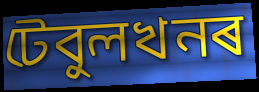
টেবুলখনৰ